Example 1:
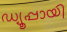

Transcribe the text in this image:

ഡ്യൂപ്പായി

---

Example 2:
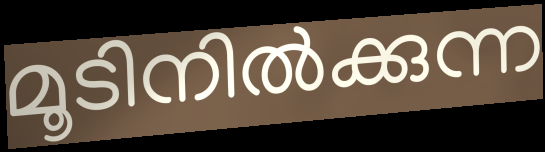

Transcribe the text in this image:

മൂടിനിൽക്കുന്ന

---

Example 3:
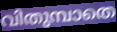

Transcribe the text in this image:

വിതുമ്പാതെ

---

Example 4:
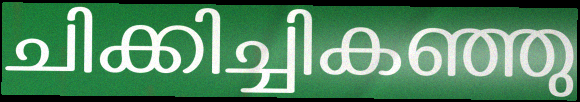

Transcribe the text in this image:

ചിക്കിച്ചികഞ്ഞു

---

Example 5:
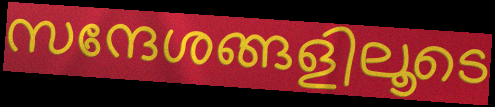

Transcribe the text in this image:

സന്ദേശങ്ങളിലൂടെ